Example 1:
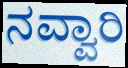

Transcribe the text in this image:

ನವ್ವಾರಿ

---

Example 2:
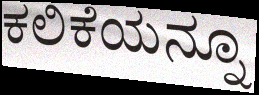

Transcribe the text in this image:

ಕಲಿಕೆಯನ್ನೂ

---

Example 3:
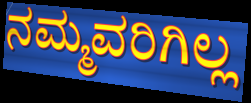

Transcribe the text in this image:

ನಮ್ಮವರಿಗಿಲ್ಲ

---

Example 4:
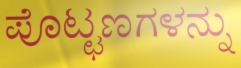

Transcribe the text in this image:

ಪೊಟ್ಟಣಗಳನ್ನು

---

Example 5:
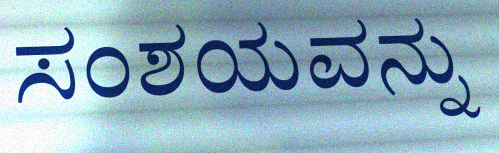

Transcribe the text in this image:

ಸಂಶಯವನ್ನು